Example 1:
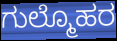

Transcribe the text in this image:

ಗುಲ್ಮೊಹರ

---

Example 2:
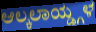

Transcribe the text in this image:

ಆಲ್ಕಲಾಯ್ಡ್ಗಳ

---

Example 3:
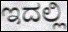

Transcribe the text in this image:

ಇದಲ್ಲಿ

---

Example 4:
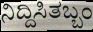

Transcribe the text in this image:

ನಿದ್ದಿಸಿತಬ್ಬಂ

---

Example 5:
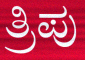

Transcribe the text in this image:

ತ್ರಿಪು